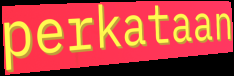
perkataan